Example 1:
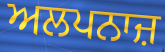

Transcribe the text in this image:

ਅਲਪਨਾਜ਼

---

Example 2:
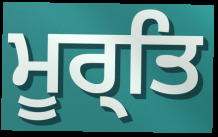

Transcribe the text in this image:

ਮੂਰ੍ਤਿ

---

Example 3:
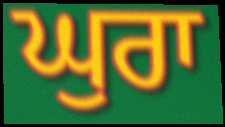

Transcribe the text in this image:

ਘੁਰਾ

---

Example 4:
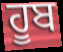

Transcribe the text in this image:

ਹੂਬ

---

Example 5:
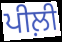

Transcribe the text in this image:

ਪੀਲ਼ੀ